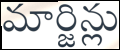
మార్జిన్లు